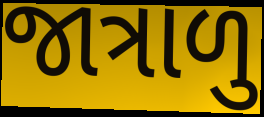
જાત્રાળુ